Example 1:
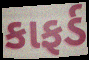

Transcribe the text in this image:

કાફર્ડ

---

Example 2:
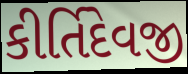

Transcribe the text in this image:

કીર્તિદેવજી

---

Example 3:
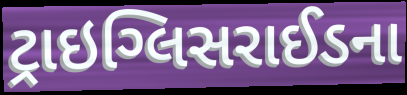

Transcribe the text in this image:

ટ્રાઇગ્લિસરાઈડના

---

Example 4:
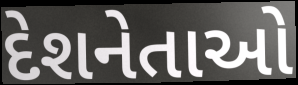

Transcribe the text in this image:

દેશનેતાઓ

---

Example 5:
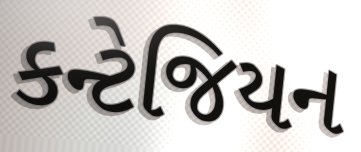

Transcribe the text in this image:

કન્ટેજિયન